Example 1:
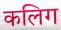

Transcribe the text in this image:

कलिग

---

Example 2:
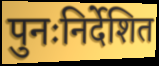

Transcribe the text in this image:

पुनःनिर्देशित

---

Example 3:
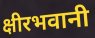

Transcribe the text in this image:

क्षीरभवानी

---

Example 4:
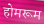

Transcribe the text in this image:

होमरूम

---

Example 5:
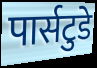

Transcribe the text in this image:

पार्सटुडे